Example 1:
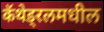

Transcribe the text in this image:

कॅथेड्रलमधील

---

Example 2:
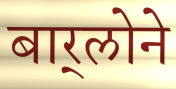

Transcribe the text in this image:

बार्लोने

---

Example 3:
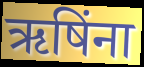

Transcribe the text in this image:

ऋषिंना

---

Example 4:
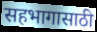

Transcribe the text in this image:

सहभागासाठी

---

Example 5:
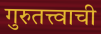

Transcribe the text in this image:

गुरुतत्त्वाची